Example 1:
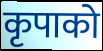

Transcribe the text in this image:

कृपाको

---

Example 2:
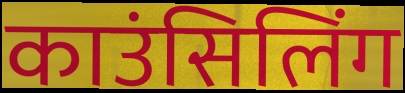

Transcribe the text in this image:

काउंसिलिंग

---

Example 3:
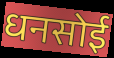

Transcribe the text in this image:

धनसोई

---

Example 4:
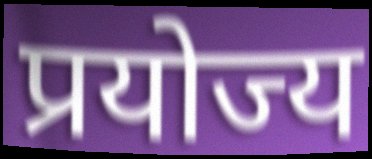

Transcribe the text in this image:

प्रयोज्य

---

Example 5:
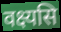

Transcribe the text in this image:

वक्ष्यसि